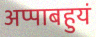
अप्पाबहुयं